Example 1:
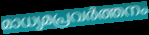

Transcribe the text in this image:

മാധ്യമപ്രവർത്തനം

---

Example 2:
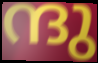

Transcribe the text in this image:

ന്ദു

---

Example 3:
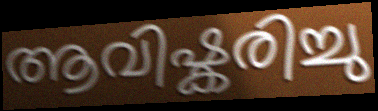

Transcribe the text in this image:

ആവിഷ്കരിച്ചു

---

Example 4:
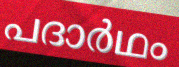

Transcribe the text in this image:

പദാർഥം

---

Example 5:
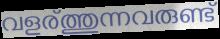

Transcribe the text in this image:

വളര്ത്തുന്നവരുണ്ട്